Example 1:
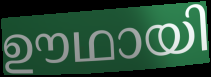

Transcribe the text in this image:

ഊഥായി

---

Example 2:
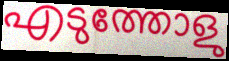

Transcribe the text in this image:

എടുത്തോളു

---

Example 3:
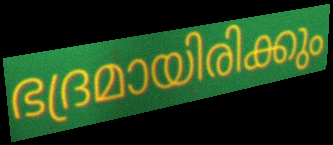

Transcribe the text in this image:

ഭദ്രമായിരിക്കും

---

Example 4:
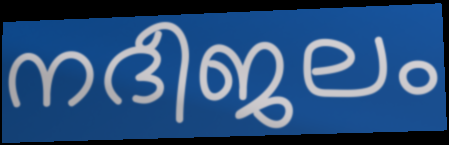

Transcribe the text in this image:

നദീജലം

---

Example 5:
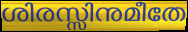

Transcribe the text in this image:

ശിരസ്സിനുമീതേ